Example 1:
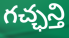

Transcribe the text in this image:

గచ్ఛన్తి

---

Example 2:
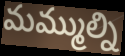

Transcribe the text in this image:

మమ్ముల్ని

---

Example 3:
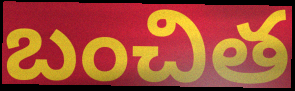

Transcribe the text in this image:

బంచిత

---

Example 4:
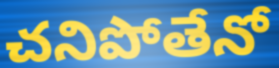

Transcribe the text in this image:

చనిపోతేనో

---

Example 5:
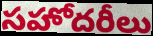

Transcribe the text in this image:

సహోదరీలు